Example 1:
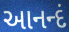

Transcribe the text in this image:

આનન્દં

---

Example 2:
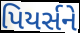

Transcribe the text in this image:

પિયર્સને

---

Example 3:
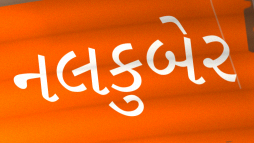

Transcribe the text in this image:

નલકુબેર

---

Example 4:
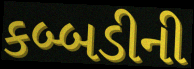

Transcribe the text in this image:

કબ્બડીની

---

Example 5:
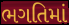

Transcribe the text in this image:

ભગતિમાં